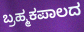
ಬ್ರಹ್ಮಕಪಾಲದ